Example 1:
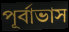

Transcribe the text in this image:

পূর্বাভাস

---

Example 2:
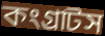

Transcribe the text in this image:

কংগ্রাটস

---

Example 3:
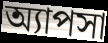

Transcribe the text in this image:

অ্যাপসা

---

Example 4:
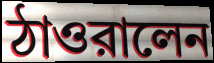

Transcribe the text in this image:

ঠাওরালেন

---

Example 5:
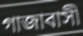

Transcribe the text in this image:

গাজাবাসী